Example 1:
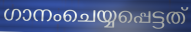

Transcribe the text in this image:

ഗാനംചെയ്യപ്പെട്ടത്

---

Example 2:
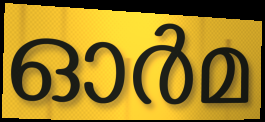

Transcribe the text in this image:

ഓർമ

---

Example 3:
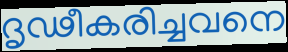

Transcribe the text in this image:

ദൃഢീകരിച്ചവനെ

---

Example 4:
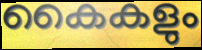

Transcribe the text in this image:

കൈകളും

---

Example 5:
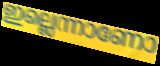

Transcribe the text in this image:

ഇല്ലെന്നാണോ